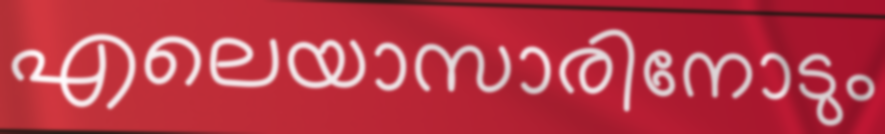
എലെയാസാരിനോടും